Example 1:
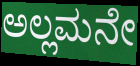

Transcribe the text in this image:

ಅಲ್ಲಮನೇ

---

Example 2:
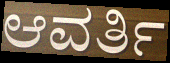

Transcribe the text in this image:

ಆವರ್ತಿ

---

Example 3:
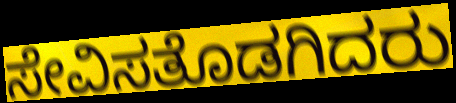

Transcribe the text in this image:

ಸೇವಿಸತೊಡಗಿದರು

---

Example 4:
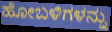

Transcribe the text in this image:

ಹೋಬಳಿಗಳನ್ನು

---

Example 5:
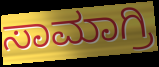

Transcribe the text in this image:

ಸಾಮಾಗ್ರಿ